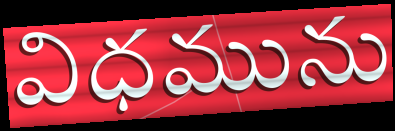
విధమును